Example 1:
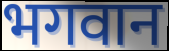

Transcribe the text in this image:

भगवान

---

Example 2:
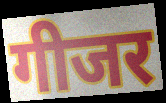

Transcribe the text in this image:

गीजर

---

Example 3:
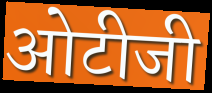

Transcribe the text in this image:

ओटीजी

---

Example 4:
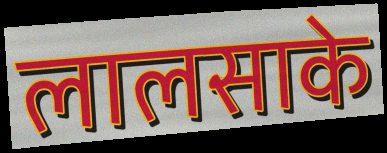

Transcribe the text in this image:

लालसाके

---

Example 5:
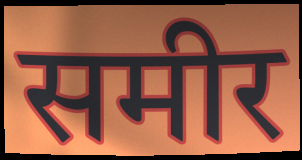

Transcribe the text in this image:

समीर